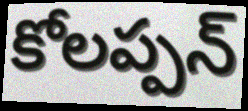
కోలప్పన్